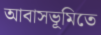
আবাসভূমিতে